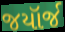
જયૉર્જ